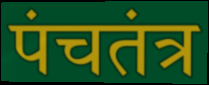
पंचतंत्र